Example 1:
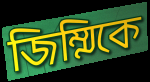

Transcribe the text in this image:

জিম্মিকে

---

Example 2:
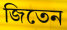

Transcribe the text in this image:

জিতেন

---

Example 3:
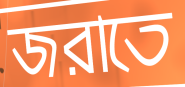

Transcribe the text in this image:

জরাতে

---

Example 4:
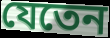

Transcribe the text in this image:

যেতেন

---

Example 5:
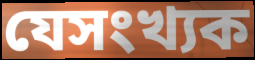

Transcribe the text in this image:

যেসংখ্যক